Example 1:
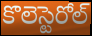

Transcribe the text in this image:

కొలెస్టెరోల్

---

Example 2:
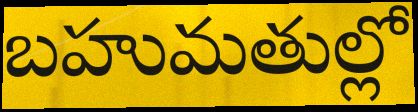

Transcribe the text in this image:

బహుమతుల్లో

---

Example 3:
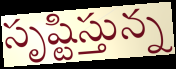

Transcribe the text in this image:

సృష్టిస్తున్న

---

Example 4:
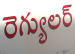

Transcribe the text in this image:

రెగ్యులర్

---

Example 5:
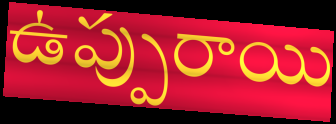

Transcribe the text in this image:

ఉప్పురాయి